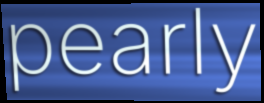
pearly